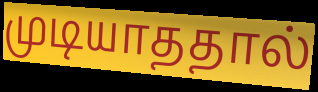
முடியாததால்